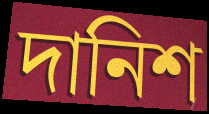
দানিশ